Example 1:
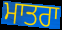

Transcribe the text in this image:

ਮਾਤਰਾ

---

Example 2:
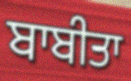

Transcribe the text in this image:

ਬਾਬੀਤਾ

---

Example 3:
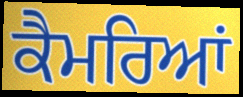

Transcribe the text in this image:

ਕੈਮਰਿਆਂ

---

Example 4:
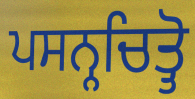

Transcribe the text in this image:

ਪਸਨ੍ਨਚਿਤ੍ਤੋ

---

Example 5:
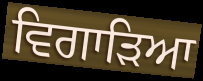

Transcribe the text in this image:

ਵਿਗਾੜਿਆ